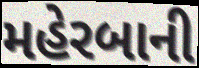
મહેરબાની